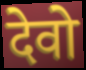
देवो